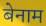
बेनाम